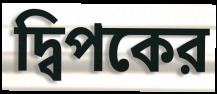
দ্বিপকের